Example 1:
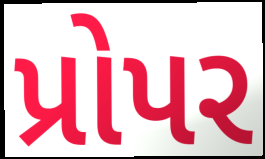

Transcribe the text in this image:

પ્રોપર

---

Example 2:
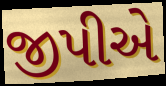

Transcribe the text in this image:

જીપીએ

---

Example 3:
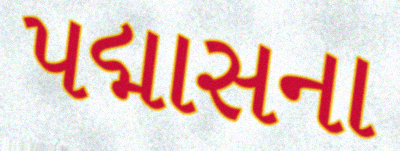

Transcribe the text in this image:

પદ્માસના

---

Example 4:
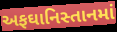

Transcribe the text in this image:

અફઘાનિસ્તાનમાં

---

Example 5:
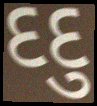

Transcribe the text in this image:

દદુ